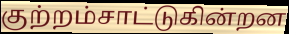
குற்றம்சாட்டுகின்றன